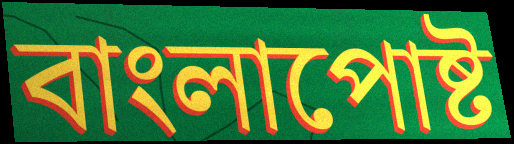
বাংলাপোষ্ট